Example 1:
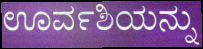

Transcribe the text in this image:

ಊರ್ವಶಿಯನ್ನು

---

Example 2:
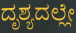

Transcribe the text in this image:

ದೃಶ್ಯದಲ್ಲೇ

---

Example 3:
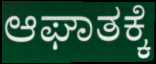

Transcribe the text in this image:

ಆಘಾತಕ್ಕೆ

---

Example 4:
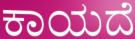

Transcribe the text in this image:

ಕಾಯದೆ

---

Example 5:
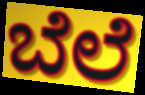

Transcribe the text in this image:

ಬೆಲೆ